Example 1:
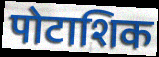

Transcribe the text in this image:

पोटाशिक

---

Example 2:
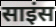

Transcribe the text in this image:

साइंस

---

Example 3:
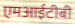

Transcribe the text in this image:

एमआईटीबी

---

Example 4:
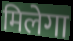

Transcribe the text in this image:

मिलेगा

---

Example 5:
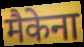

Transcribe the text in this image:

मैकेना